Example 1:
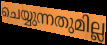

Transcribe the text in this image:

ചെയ്യുന്നതുമില്ല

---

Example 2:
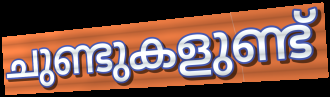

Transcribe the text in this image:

ചുണ്ടുകളുണ്ട്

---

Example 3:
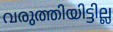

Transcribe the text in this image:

വരുത്തിയിട്ടില്ല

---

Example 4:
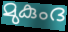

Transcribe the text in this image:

മുകുംദ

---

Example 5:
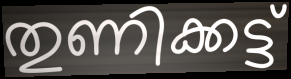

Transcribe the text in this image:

തുണിക്കട്ട്